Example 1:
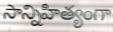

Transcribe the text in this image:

సాన్నిహిత్యంగా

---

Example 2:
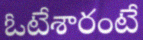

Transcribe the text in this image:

ఓటేశారంటే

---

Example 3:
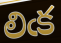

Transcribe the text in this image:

లిఁక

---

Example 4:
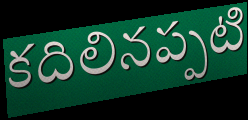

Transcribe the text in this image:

కదిలినప్పటి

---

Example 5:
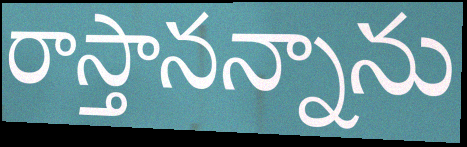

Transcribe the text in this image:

రాస్తానన్నాను